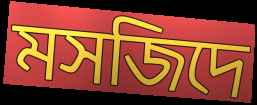
মসজিদে